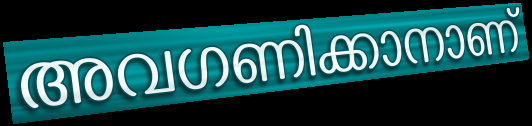
അവഗണിക്കാനാണ്